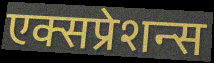
एक्सप्रेशन्स